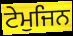
ਟੇਮੁਜਿਨ